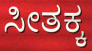
ಸೀತಕ್ಕ